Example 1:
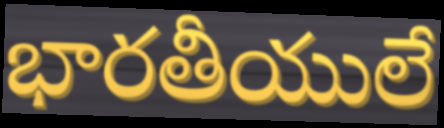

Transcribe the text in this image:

భారతీయులే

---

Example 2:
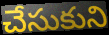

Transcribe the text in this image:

చేసుకుని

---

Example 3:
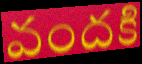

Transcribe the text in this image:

వందకి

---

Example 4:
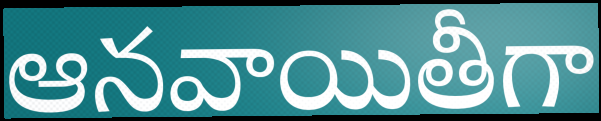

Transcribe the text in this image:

ఆనవాయితీగా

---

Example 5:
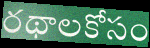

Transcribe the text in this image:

రథాలకోసం